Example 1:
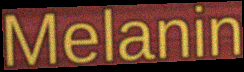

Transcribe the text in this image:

Melanin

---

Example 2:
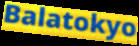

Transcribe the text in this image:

Balatokyo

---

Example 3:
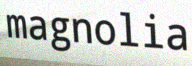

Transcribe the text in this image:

magnolia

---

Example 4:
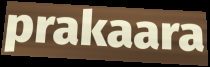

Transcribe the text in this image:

prakaara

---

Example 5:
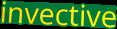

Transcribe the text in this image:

invective